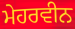
ਮੇਹਰਵੀਨ